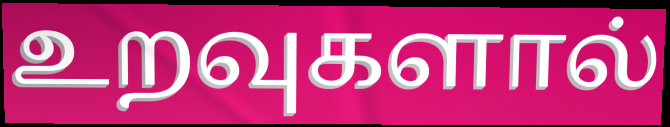
உறவுகளால்